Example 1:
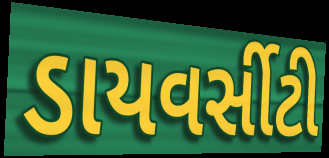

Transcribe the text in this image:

ડાયવર્સીટી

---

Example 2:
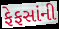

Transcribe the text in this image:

ફેફસાંની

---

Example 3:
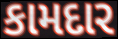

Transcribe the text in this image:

કામદાર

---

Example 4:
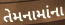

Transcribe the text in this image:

તેમનામાંના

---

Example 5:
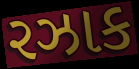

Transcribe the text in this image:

રઝાક